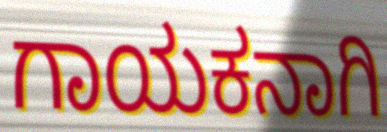
ಗಾಯಕನಾಗಿ